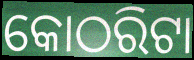
କୋଠରିଟା